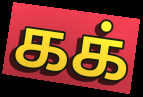
கக்